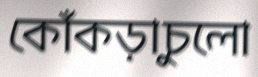
কোঁকড়াচুলো